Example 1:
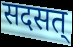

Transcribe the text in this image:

सदसत्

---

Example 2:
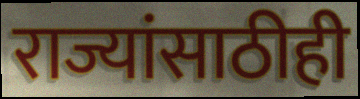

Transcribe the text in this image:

राज्यांसाठीही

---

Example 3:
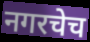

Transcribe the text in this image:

नगरचेच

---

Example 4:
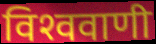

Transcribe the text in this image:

विश्ववाणी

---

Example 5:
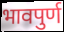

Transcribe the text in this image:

भावपुर्ण